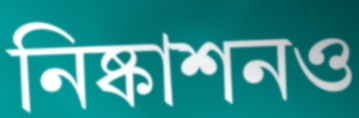
নিষ্কাশনও